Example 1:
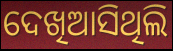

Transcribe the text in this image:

ଦେଖିଆସିଥିଲି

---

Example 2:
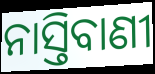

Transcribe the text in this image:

ନାସ୍ତିବାଣୀ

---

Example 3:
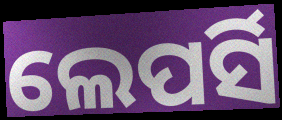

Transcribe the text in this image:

ଲେପର୍ସି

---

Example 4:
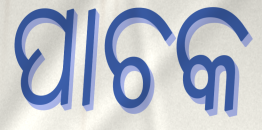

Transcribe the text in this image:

ପାଚକ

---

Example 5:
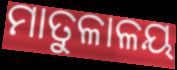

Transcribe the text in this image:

ମାତୁଳାଳୟ